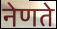
नेणते